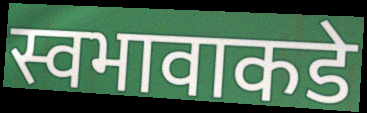
स्वभावाकडे